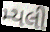
મ્યલી